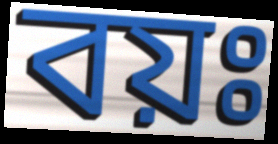
বয়ঃ